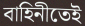
বাহিনীতেই